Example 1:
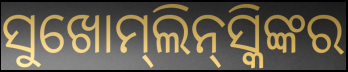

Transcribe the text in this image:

ସୁଖୋମ୍‌ଲିନ୍‌ସ୍କିଙ୍କର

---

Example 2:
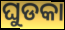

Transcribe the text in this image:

ଘୁଡକା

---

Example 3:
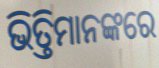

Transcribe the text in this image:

ଭିତ୍ତିମାନଙ୍କରେ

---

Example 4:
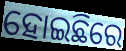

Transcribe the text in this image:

ହୋଇଛିରେ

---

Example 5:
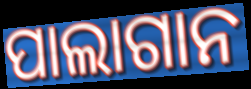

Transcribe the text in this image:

ପାଲାଗାନ